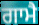
ਗਾਮੈ